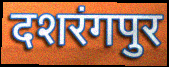
दशरंगपुर